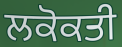
ਲਕੋਕਤੀ